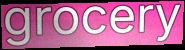
grocery